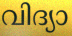
വിദ്യാ